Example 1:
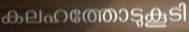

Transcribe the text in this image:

കലഹത്തോടുകൂടി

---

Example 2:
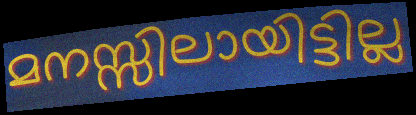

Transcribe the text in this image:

മനസ്സിലായിട്ടില്ല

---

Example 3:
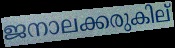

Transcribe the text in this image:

ജനാലക്കരുകില്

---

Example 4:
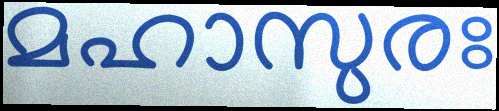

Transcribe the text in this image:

മഹാസുരഃ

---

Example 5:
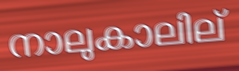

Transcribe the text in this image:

നാലുകാലില്